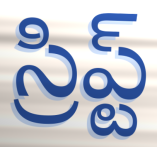
స్రిప్ట్